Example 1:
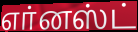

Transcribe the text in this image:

எர்னஸ்ட்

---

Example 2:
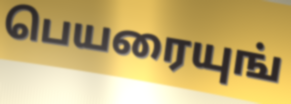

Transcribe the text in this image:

பெயரையுங்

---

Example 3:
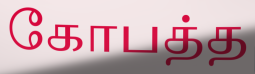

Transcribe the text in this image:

கோபத்த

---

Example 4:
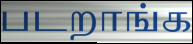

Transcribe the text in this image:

படறாங்க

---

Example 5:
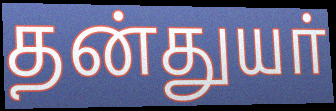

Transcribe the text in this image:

தன்துயர்